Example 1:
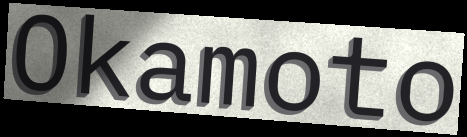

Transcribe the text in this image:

Okamoto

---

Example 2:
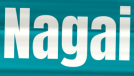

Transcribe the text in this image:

Nagai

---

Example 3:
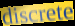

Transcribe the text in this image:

discrete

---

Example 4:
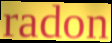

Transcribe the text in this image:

radon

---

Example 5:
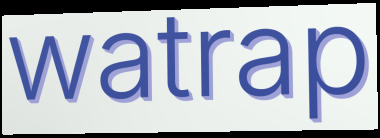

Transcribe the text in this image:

watrap